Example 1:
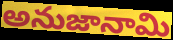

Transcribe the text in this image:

అనుజానామి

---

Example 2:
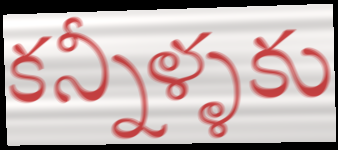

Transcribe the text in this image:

కన్నీళ్ళకు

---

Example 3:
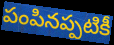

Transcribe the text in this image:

పంపినప్పటికీ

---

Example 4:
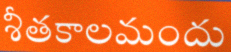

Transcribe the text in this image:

శీతకాలమందు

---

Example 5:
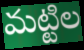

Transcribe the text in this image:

మట్టిల